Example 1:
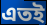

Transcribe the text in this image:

এতই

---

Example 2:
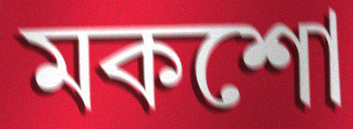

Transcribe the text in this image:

মকশো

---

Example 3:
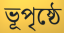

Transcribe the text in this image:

ভূপৃষ্ঠে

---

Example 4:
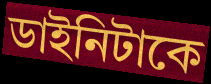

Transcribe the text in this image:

ডাইনিটাকে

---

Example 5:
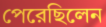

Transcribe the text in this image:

পেরেছিলেন